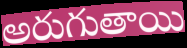
అరుగుతాయి